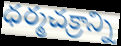
ధర్మచక్రాన్ని